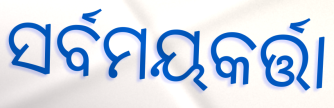
ସର୍ବମୟକର୍ତ୍ତା